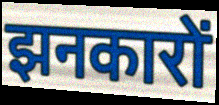
झनकारों